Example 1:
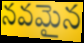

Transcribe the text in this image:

నవమైన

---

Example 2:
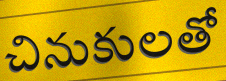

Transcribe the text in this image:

చినుకులతో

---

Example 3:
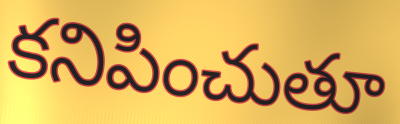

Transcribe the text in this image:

కనిపించుతూ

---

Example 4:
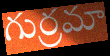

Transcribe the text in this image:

గుర్రమా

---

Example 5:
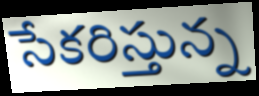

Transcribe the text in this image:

సేకరిస్తున్న